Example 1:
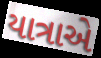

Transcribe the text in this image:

યાત્રાએ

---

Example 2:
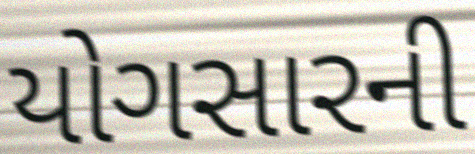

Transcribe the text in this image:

યોગસારની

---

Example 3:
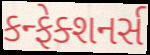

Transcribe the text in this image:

કન્ફેક્શનર્સ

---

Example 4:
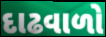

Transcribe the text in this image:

દાઢવાળો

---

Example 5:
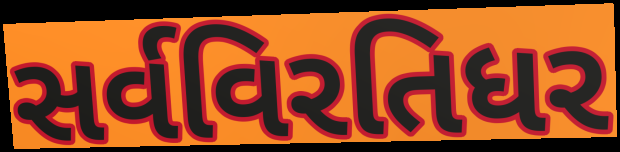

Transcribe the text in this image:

સર્વવિરતિધર